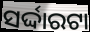
ସର୍ଦ୍ଦାରଟା